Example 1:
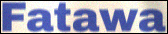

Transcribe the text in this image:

Fatawa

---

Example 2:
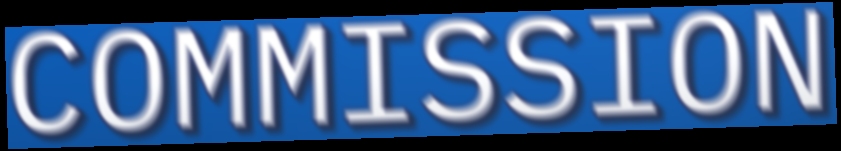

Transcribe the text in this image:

COMMISSION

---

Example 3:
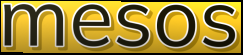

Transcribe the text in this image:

mesos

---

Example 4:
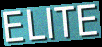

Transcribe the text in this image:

ELITE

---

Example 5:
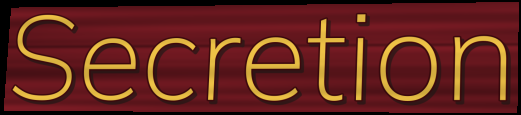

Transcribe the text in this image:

Secretion